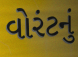
વોરંટનું